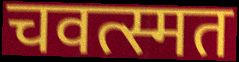
चवत्स्मत